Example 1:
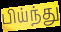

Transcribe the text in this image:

பிய்ந்து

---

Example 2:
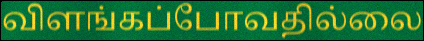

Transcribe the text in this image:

விளங்கப்போவதில்லை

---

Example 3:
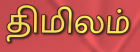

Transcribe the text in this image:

திமிலம்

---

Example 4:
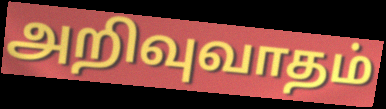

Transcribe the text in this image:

அறிவுவாதம்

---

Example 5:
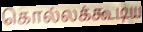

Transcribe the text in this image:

கொல்லக்கூடிய